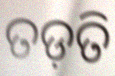
ତଡ଼ତି